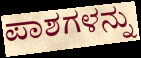
ಪಾಶಗಳನ್ನು